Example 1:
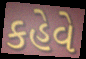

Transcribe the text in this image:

કહેવે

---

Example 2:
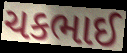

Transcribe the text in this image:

ચકભાઈ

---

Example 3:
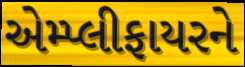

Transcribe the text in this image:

એમ્પ્લીફાયરને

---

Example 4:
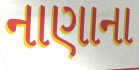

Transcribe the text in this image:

નાણાના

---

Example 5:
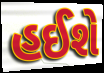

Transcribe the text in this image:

હઈશે